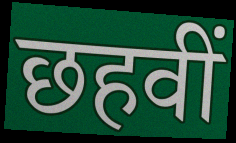
छहवीं